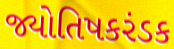
જ્યોતિષકરંડક